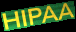
HIPAA